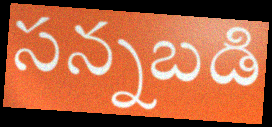
సన్నబడి